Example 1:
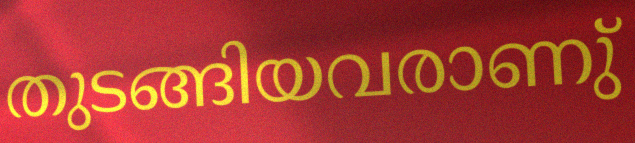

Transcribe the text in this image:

തുടങ്ങിയവരാണു്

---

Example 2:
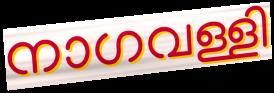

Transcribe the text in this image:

നാഗവള്ളി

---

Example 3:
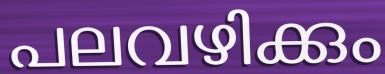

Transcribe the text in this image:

പലവഴിക്കും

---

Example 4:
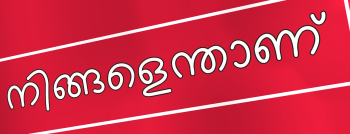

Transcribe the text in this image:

നിങ്ങളെന്താണ്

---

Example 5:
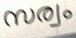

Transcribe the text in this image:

സര്വം